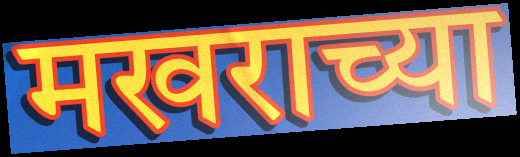
मखराच्या